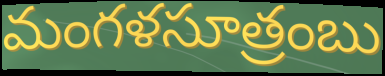
మంగళసూత్రంబు